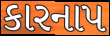
કારનાપ